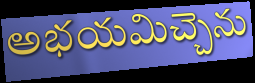
అభయమిచ్చెను